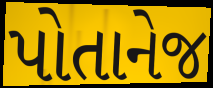
પોતાનેજ